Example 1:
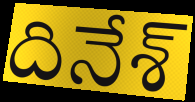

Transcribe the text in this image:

దినేశ్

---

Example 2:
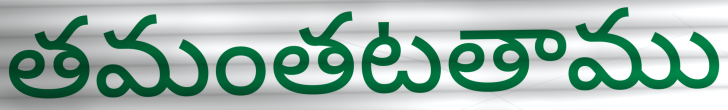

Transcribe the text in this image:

తమంతటతాము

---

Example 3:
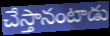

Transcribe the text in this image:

చేస్తానంటాడు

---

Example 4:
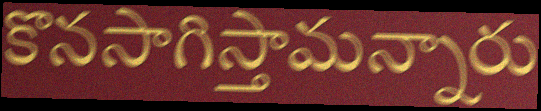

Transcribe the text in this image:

కొనసాగిస్తామన్నారు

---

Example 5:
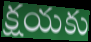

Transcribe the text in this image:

క్షయకు